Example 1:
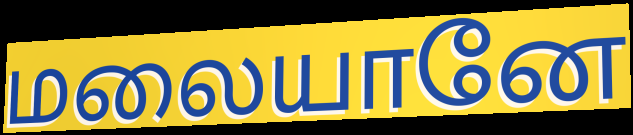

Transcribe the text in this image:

மலையானே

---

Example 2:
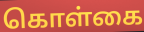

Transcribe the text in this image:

கொள்கை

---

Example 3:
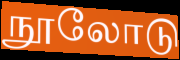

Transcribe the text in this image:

நூலோடு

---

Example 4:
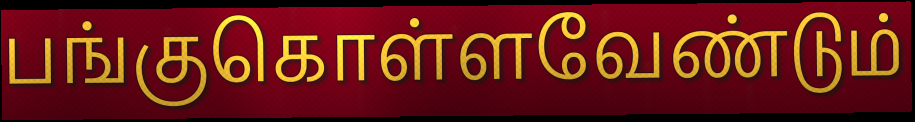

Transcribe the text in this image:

பங்குகொள்ளவேண்டும்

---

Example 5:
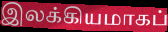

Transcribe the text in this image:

இலக்கியமாகப்